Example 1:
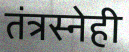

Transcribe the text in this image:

तंत्रस्नेही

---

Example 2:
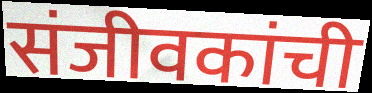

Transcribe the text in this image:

संजीवकांची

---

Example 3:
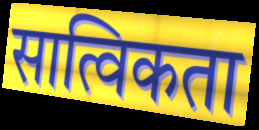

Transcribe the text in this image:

सात्विकता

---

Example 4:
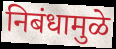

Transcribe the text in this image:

निबंधामुळे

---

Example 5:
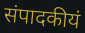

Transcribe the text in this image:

संपादकीयं